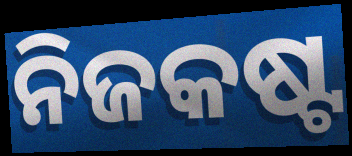
ନିଜକଷ୍ଟ